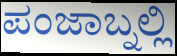
ಪಂಜಾಬ್ನಲ್ಲಿ